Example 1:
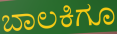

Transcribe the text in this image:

ಬಾಲಕಿಗೂ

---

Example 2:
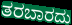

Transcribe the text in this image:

ತರಬಾರದು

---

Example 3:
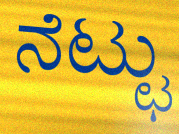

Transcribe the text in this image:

ನೆಟ್ಟು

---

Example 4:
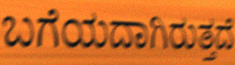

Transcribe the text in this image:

ಬಗೆಯದಾಗಿರುತ್ತದೆ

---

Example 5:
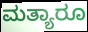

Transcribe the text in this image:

ಮತ್ಯಾರೂ